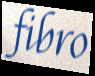
fibro